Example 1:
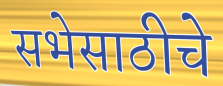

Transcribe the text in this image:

सभेसाठीचे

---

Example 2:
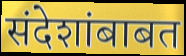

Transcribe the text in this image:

संदेशांबाबत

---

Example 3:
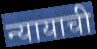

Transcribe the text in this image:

न्यायाची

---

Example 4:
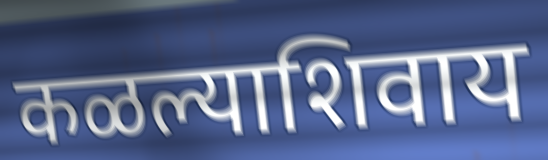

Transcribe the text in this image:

कळल्याशिवाय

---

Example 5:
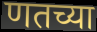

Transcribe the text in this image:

णतच्या